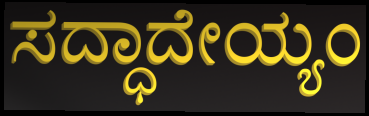
ಸದ್ಧಾದೇಯ್ಯಂ